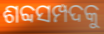
ଶବ୍ଦସମ୍ପଦକୁ